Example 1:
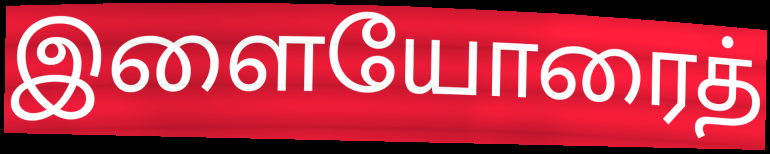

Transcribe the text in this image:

இளையோரைத்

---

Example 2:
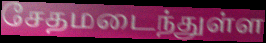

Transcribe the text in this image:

சேதமடைந்துள்ள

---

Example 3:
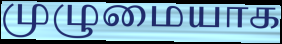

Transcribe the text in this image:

முழுமையாக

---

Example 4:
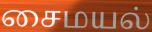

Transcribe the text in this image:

சைமயல்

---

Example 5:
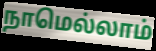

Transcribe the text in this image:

நாமெல்லாம்